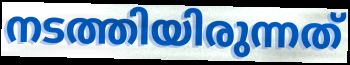
നടത്തിയിരുന്നത്